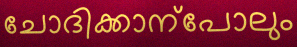
ചോദിക്കാന്പോലും